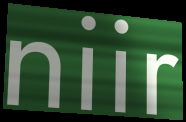
niir